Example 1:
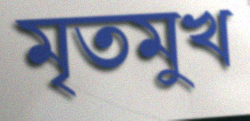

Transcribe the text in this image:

মৃতমুখ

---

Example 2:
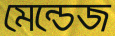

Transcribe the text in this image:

মেন্ডেজ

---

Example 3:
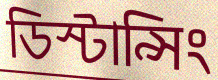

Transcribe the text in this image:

ডিস্টান্সিং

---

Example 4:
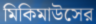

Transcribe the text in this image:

মিকিমাউসের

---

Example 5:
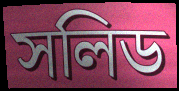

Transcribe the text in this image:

সলিড